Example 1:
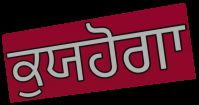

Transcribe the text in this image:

ਕੁਯਹੋਗਾ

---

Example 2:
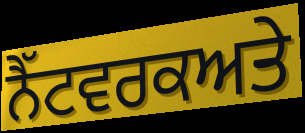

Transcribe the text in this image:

ਨੈੱਟਵਰਕਅਤੇ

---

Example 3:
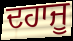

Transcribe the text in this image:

ਦਹਾਜੂ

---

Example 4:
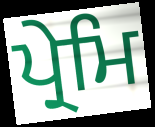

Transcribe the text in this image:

ਪ੍ਰੇਮਿ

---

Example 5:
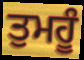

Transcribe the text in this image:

ਤੁਮਹੂੰ